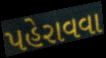
પહેરાવવા